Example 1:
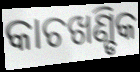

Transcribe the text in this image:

କାଚଖଣ୍ଡିକ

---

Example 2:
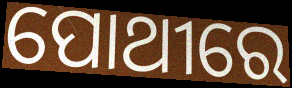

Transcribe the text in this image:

ପୋଥୀରେ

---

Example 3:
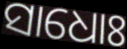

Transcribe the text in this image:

ସାଧୋଃ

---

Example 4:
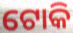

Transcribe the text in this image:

ଟୋକି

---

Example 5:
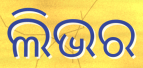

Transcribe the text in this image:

ଲିଭର